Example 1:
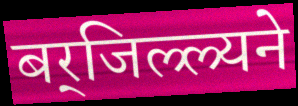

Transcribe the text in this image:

बर्जिल्ल्यने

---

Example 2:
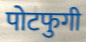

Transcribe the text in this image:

पोटफुगी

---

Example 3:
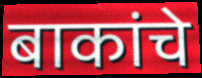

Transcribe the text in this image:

बाकांचे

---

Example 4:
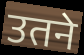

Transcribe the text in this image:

उतने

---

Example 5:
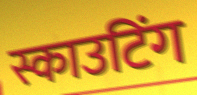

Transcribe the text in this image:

स्काउटिंग